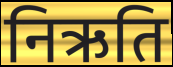
निऋति